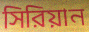
সিরিয়ান